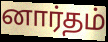
னார்தம்